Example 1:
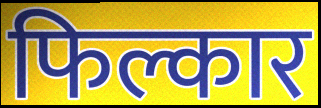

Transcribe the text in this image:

फिल्कार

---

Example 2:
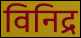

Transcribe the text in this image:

विनिद्र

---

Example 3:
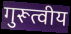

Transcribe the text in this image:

गुरूत्वीय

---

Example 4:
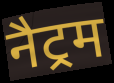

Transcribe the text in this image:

नैट्रम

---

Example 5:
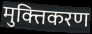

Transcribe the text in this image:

मुक्तिकरण